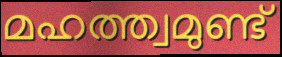
മഹത്ത്വമുണ്ട്